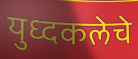
युध्दकलेचे